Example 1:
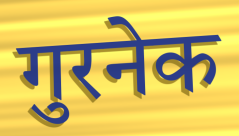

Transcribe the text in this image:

गुरनेक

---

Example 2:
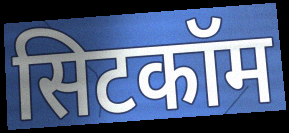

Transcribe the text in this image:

सिटकॉम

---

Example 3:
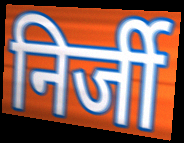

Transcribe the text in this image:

निर्जी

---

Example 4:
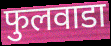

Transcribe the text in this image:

फुलवाडा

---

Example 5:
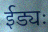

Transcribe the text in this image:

ईड्यः